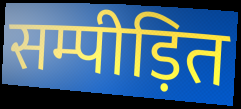
सम्पीड़ित